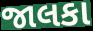
જાલકા